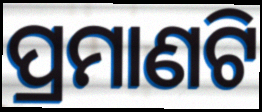
ପ୍ରମାଣଟି